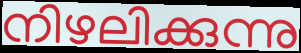
നിഴലിക്കുന്നു